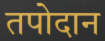
तपोदान